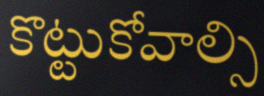
కొట్టుకోవాల్సి